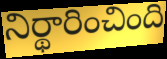
నిర్థారించింది